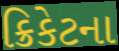
ક્રિકેટના